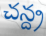
చన్ద్ర